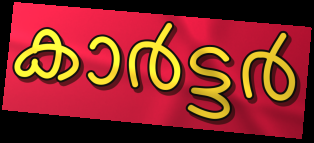
കാർട്ടർ